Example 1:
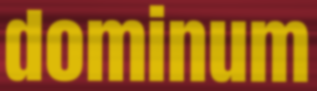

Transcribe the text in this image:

dominum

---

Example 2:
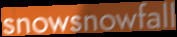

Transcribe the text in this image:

snowsnowfall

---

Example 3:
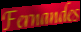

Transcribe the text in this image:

Fernandes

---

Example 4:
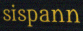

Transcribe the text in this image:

sispann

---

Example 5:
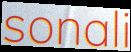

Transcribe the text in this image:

sonali